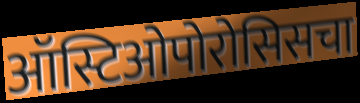
ऑस्टिओपोरोसिसचा